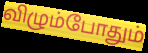
விழும்போதும்